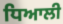
ਧਿਆਲੀ